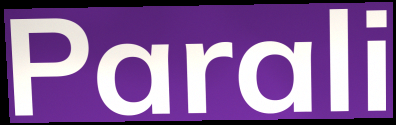
Parali